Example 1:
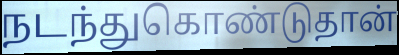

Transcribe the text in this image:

நடந்துகொண்டுதான்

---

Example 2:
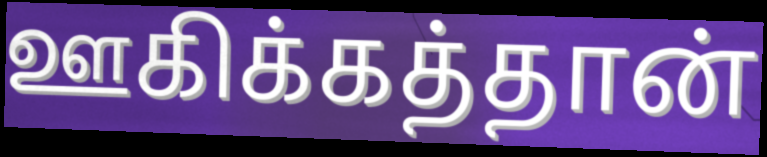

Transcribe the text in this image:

ஊகிக்கத்தான்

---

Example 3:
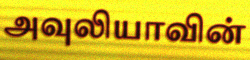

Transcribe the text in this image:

அவுலியாவின்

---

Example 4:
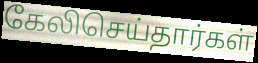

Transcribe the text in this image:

கேலிசெய்தார்கள்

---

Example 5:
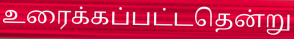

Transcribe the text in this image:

உரைக்கப்பட்டதென்று